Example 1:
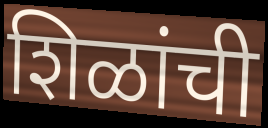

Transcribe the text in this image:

शिळांची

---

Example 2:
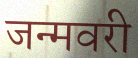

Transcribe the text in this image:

जन्मवरी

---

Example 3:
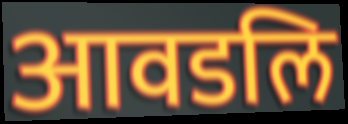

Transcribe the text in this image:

आवडलि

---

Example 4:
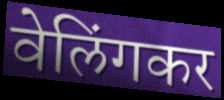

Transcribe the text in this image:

वेलिंगकर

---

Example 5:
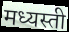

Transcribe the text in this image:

मध्यस्ती